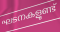
ഘടനകളുണ്ട്